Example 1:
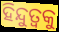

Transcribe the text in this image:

ହିନ୍ଦୁତ୍ୱକୁ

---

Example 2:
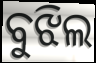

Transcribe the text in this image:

ବୁଝିଲ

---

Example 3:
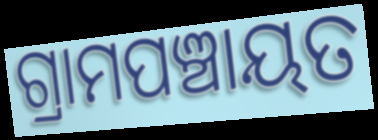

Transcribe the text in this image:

ଗ୍ରାମପଞ୍ଚାୟତ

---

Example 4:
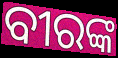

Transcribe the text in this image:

ବୀରଙ୍କ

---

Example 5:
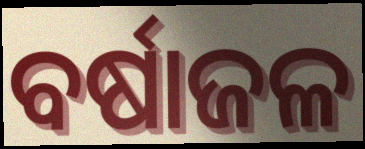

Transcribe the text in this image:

ବର୍ଷାଜଳ